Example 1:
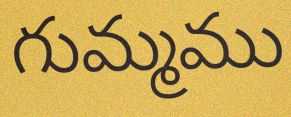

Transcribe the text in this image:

గుమ్మము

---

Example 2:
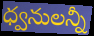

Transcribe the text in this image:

ధ్వనులన్నీ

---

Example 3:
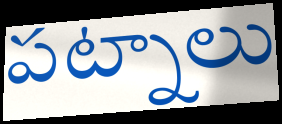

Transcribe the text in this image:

పట్నాలు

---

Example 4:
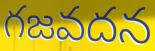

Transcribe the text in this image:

గజవదన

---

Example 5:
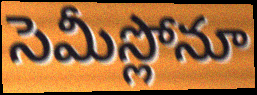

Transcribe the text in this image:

సెమీస్లోనూ